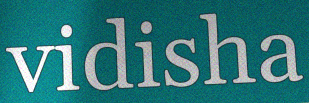
vidisha